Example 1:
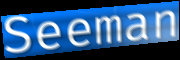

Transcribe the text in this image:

Seeman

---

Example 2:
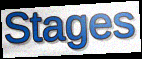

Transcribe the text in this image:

Stages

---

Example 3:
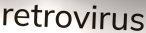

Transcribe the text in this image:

retrovirus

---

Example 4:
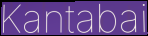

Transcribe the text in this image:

Kantabai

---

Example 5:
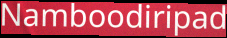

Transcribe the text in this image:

Namboodiripad